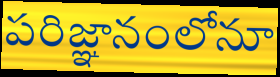
పరిజ్ఞానంలోనూ